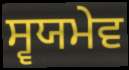
ਸ੍ਵਯਮੇਵ